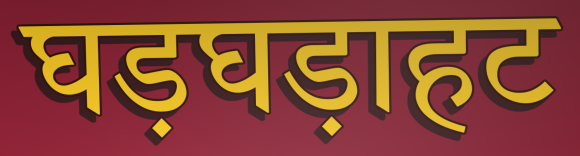
घड़घड़ाहट